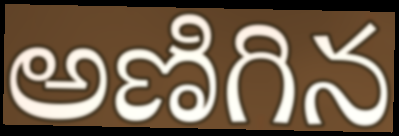
అణిగిన